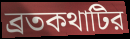
ব্রতকথাটির